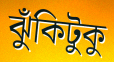
ঝুঁকিটুকু